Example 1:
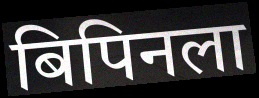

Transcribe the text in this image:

बिपिनला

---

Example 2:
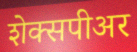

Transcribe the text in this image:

शेक्सपीअर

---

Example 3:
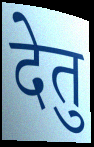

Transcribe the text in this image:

देतु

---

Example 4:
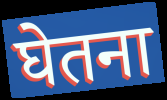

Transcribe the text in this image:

घेतना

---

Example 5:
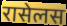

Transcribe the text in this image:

रासेलस